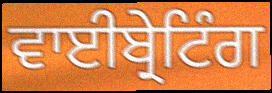
ਵਾਈਬ੍ਰੇਟਿੰਗ